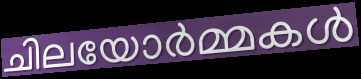
ചിലയോർമ്മകൾ